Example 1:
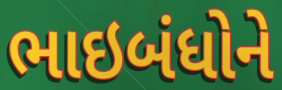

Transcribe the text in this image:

ભાઇબંધોને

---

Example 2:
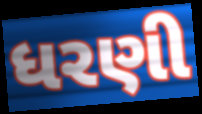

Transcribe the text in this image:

ધરણી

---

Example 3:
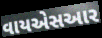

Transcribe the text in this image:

વાયએસઆર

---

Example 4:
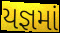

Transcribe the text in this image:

યજ્ઞમાં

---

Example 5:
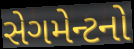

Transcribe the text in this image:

સેગમેન્ટનો